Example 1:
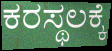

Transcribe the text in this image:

ಕರಸ್ಥಲಕ್ಕೆ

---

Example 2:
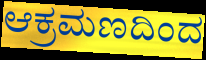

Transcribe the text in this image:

ಆಕ್ರಮಣದಿಂದ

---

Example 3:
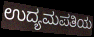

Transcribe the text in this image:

ಉದ್ಯಮಪತಿಯ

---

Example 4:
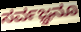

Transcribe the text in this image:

ಸರ್ವಜ್ಞನೂ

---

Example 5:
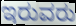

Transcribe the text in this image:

ಇರುವರು